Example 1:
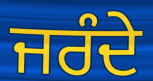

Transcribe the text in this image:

ਜਰੰਦੇ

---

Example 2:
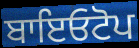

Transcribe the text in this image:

ਬਾਇਓਟੋਪ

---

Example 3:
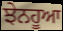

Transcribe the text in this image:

ਝੇਨਹੂਆ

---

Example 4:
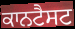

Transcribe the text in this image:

ਕਾਨਟੈਸਟ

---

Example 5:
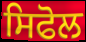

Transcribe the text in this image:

ਸਿਫੋਲ